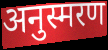
अनुस्मरण